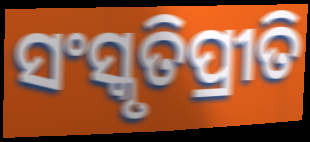
ସଂସ୍କୃତିପ୍ରୀତି